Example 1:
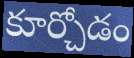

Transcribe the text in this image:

కూర్చోడం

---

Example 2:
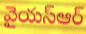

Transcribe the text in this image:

వైయస్ఆర్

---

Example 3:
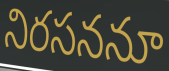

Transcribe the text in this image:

నిరసననూ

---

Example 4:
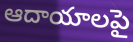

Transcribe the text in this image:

ఆదాయాలపై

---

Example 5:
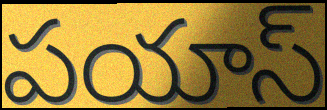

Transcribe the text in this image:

పయాస్